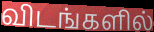
விடங்களில்